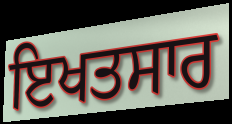
ਇਖਤਸਾਰ